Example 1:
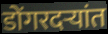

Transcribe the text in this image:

डोंगरदऱ्यांत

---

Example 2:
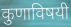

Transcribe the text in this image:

कुणाविषयी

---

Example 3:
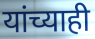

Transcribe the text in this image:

यांच्याही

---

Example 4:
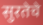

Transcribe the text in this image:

सुरतेचे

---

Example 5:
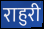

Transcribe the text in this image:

राहुरी